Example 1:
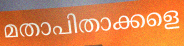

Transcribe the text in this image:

മതാപിതാക്കളെ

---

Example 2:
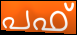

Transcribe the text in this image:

പഫ്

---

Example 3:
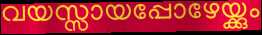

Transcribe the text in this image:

വയസ്സായപ്പോഴേയ്ക്കും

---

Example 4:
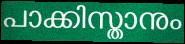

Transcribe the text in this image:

പാക്കിസ്താനും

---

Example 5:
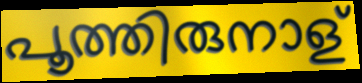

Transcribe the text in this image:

പൂത്തിരുനാള്